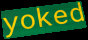
yoked